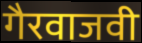
गैरवाजवी